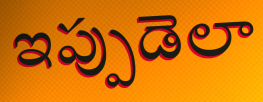
ఇప్పుడెలా